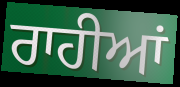
ਰਾਹੀਆਂ